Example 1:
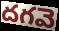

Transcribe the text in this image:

దగవె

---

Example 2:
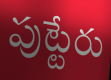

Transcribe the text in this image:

పుట్టేరు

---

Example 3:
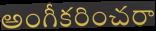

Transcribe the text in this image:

అంగీకరించరా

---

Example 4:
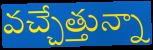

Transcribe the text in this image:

వచ్చేత్తున్నా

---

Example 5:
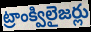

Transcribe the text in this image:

ట్రాంక్విలైజర్లు